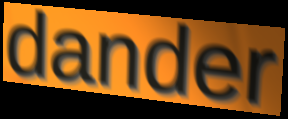
dander